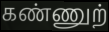
கண்ணுற்